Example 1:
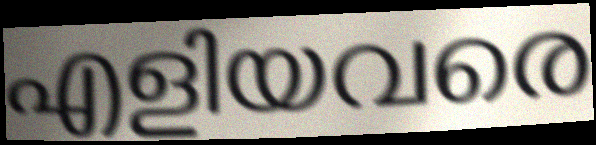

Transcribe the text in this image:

എളിയവരെ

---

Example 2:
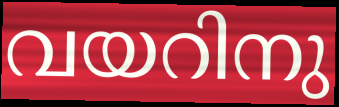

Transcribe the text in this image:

വയറിനു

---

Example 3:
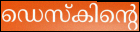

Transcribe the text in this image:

ഡെസ്കിന്റെ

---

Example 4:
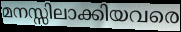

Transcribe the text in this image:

മനസ്സിലാക്കിയവരെ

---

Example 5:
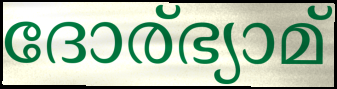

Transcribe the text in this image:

ദോര്ഭ്യാമ്